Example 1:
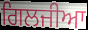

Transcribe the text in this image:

ਗਿਲਜੀਆ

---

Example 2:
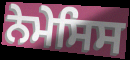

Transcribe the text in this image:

ਨੇਮੇਸਿਸ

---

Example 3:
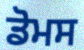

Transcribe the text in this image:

ਡੋਮਸ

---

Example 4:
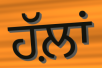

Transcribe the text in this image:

ਹੱਲ਼ਾਂ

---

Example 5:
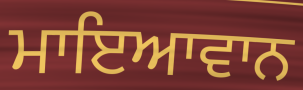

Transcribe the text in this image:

ਮਾਇਆਵਾਨ